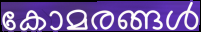
കോമരങ്ങൾ